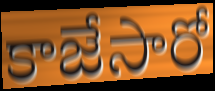
కాజేసారో